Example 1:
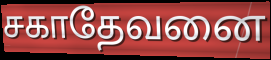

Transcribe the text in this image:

சகாதேவனை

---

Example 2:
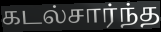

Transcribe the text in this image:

கடல்சார்ந்த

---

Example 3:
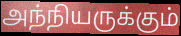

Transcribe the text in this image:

அந்நியருக்கும்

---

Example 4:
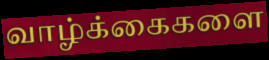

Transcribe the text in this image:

வாழ்க்கைகளை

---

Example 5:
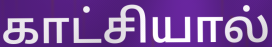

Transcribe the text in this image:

காட்சியால்